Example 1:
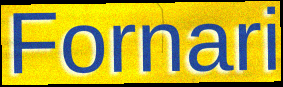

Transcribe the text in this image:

Fornari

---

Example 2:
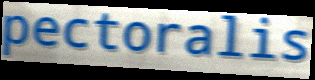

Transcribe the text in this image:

pectoralis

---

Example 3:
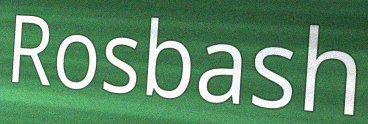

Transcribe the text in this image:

Rosbash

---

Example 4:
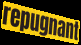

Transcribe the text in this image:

repugnant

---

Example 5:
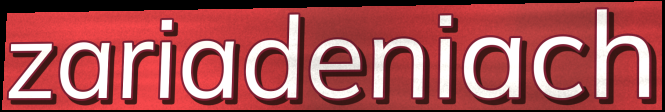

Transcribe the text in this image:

zariadeniach